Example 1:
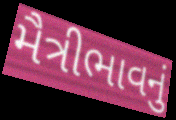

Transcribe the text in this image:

મૈત્રીભાવનું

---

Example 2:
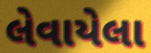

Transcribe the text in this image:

લેવાયેલા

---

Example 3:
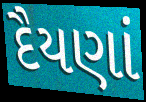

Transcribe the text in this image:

દૈયણાં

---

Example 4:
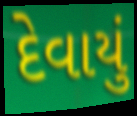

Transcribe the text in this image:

દેવાયું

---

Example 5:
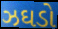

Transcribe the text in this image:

ઝઘડો